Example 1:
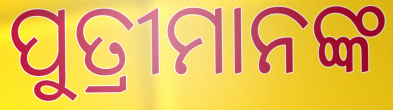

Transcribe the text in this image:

ପୁତ୍ରୀମାନଙ୍କ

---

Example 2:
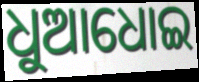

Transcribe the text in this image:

ଧୁଆଧୋଇ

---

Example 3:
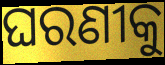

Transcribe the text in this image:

ଘରଣୀକୁ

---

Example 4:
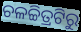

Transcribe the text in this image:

ଚଳଚ୍ଚିତ୍ରଟିରୁ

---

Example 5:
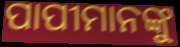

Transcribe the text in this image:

ପାପୀମାନଙ୍କୁ